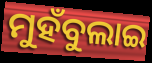
ମୁହଁବୁଲାଇ